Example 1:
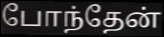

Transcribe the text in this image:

போந்தேன்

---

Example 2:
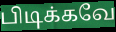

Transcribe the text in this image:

பிடிக்கவே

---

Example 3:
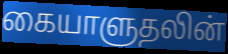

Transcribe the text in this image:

கையாளுதலின்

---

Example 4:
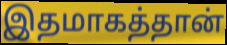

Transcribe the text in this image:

இதமாகத்தான்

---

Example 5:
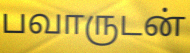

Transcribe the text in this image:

பவாருடன்